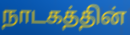
நாடகத்தின்